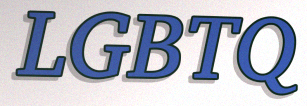
LGBTQ